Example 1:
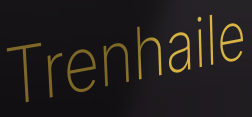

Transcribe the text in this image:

Trenhaile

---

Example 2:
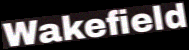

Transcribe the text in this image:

Wakefield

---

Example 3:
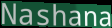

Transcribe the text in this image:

Nashana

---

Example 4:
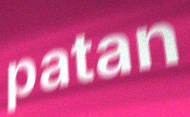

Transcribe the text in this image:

patan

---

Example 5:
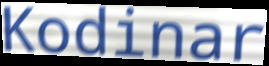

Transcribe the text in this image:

Kodinar